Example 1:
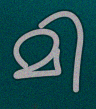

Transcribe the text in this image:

മി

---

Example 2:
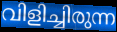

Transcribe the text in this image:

വിളിച്ചിരുന്ന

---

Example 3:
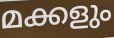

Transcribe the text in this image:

മക്കളും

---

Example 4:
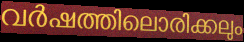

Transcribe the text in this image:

വർഷത്തിലൊരിക്കലും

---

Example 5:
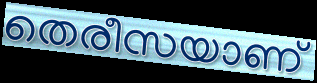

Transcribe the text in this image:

തെരീസയാണ്